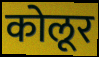
कोलूर